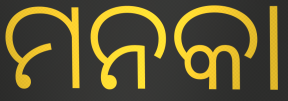
ମନକା